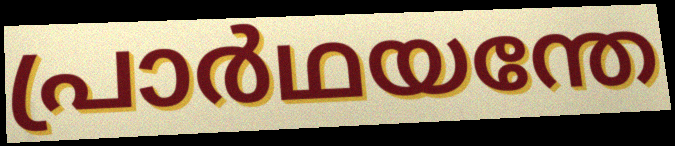
പ്രാർഥയന്തേ